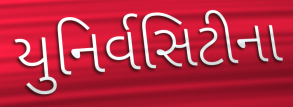
યુનિર્વસિટીના